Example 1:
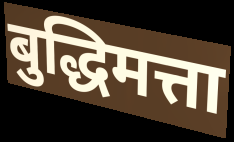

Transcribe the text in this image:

बुद्धिमत्ता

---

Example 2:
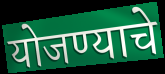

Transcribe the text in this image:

योजण्याचे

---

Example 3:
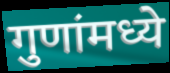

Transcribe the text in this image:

गुणांमध्ये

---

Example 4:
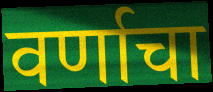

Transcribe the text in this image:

वर्णाचा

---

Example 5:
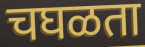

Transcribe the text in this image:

चघळता